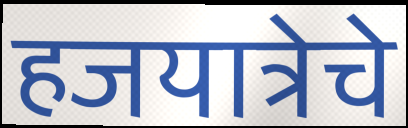
हजयात्रेचे